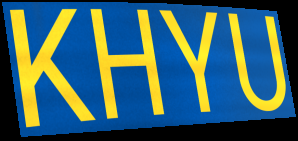
KHYU